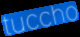
tuccho